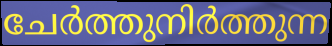
ചേർത്തുനിർത്തുന്ന